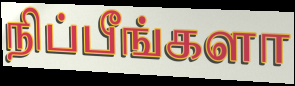
நிப்பீங்களா